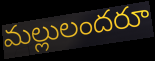
మల్లులందరూ